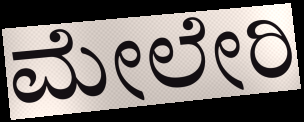
ಮೇಲೇರಿ